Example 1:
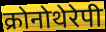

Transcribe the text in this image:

क्रोनोथेरेपी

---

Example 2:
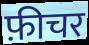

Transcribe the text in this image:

फ़ीचर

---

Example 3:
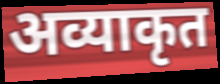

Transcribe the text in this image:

अव्याकृत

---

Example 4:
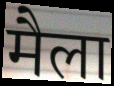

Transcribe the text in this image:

मैला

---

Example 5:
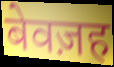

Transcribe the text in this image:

बेवज़ह